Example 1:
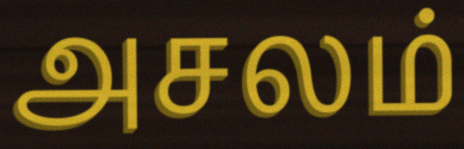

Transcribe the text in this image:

அசலம்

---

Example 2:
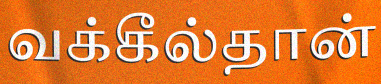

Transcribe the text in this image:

வக்கீல்தான்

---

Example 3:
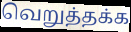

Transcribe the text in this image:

வெறுத்தக்க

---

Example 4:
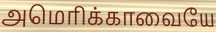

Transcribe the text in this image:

அமெரிக்காவையே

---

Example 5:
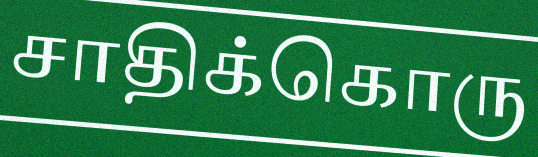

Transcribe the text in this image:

சாதிக்கொரு